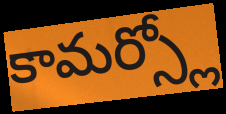
కామర్స్లో